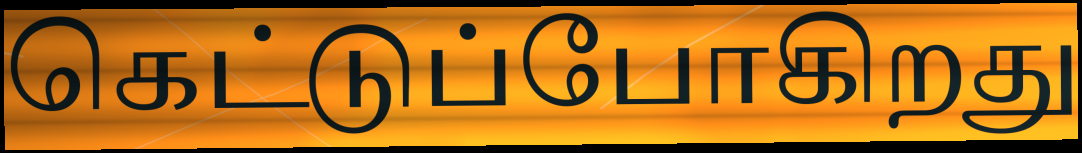
கெட்டுப்போகிறது